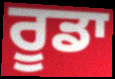
ਰੂਡਾ